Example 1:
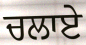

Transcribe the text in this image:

ਚਲਾਏ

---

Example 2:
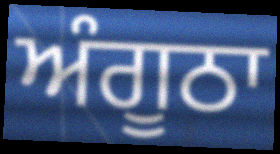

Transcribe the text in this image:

ਅੰਗੂਠਾ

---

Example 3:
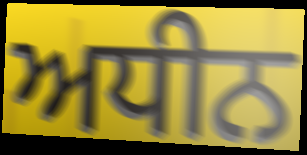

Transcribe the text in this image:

ਅਧੀਨ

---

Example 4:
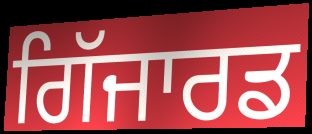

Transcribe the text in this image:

ਗਿੱਜਾਰਡ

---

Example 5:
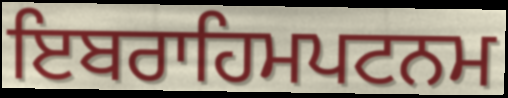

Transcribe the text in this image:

ਇਬਰਾਹਿਮਪਟਨਮ